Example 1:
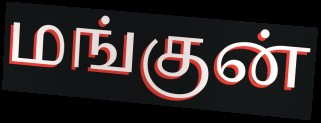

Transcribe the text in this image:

மங்குன்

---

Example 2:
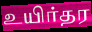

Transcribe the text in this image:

உயிர்தர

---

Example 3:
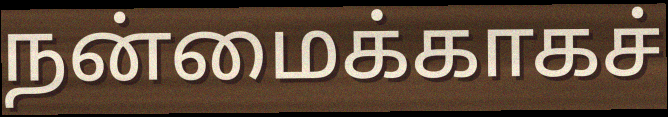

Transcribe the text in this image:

நன்மைக்காகச்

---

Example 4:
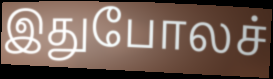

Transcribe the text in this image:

இதுபோலச்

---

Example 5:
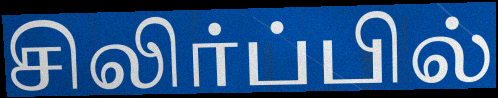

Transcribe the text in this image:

சிலிர்ப்பில்